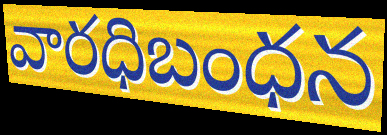
వారధిబంధన